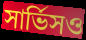
সার্ভিসও